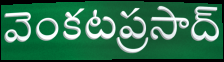
వెంకటప్రసాద్